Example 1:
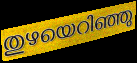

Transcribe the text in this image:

തുഴയെറിഞ്ഞു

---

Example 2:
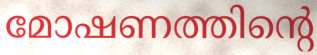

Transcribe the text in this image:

മോഷണത്തിന്റെ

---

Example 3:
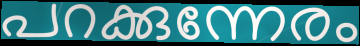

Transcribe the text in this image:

പറക്കുന്നേരം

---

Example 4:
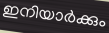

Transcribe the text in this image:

ഇനിയാർക്കും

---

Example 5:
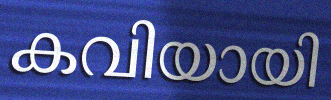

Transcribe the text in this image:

കവിയായി